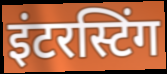
इंटरस्टिंग